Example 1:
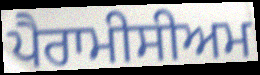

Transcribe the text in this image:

ਪੈਰਾਮੀਸੀਅਮ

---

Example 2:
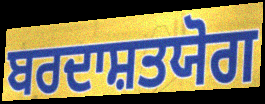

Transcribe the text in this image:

ਬਰਦਾਸ਼ਤਯੋਗ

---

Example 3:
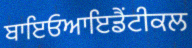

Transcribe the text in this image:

ਬਾਇਓਆਇਡੈਂਟੀਕਲ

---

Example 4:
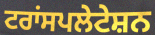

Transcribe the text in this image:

ਟਰਾਂਸਪਲੇਟੇਸ਼ਨ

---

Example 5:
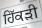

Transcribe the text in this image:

ਹਿੱਕੜੀ